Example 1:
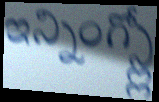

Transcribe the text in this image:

ఇన్నింగ్స్ల్లో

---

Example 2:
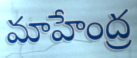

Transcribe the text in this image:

మాహేంద్ర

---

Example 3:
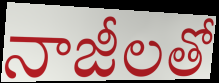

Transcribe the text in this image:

నాజీలతో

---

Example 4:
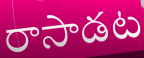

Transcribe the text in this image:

రాసాడట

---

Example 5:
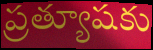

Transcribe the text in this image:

ప్రత్యూషకు